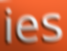
ies